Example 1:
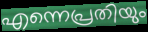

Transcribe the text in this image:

എന്നെപ്രതിയും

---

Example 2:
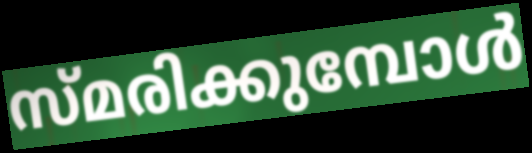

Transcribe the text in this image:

സ്മരിക്കുമ്പോൾ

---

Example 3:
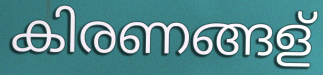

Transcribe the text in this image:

കിരണങ്ങള്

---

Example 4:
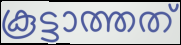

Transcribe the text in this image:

കൂട്ടാത്തത്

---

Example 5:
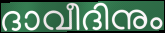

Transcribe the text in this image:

ദാവീദിനും